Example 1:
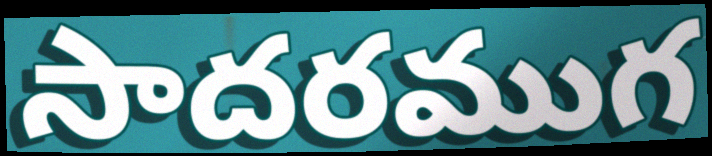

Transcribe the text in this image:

సాదరముగ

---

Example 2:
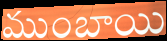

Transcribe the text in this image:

ముంబాయి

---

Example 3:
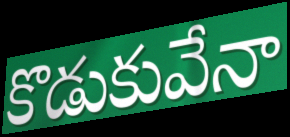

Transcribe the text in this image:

కొడుకువేనా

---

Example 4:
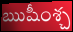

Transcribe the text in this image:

ఋషీంశ్చ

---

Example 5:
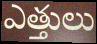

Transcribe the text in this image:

ఎత్తులు